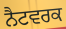
ਨੈਟਵਰਕ